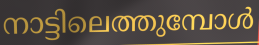
നാട്ടിലെത്തുമ്പോൾ